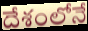
దేశంలోనే